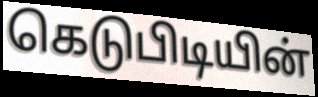
கெடுபிடியின்